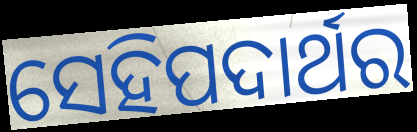
ସେହିପଦାର୍ଥର